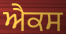
ਐਕਸ